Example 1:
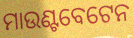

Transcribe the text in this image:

ମାଉଣ୍ଟବେଟେନ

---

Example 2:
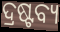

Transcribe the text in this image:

ଦ୍ରଷ୍ଟବ୍ୟ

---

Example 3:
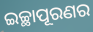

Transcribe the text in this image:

ଇଚ୍ଛାପୂରଣର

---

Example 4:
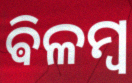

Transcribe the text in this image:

ଵିଳମ୍ବ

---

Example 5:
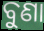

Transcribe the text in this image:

ବୁଣା